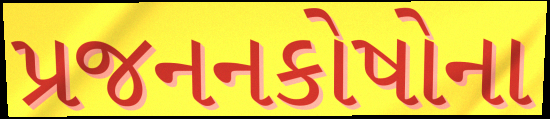
પ્રજનનકોષોના